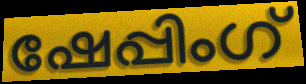
ഷേപ്പിംഗ്